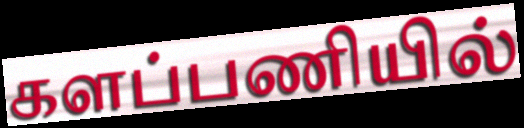
களப்பணியில்